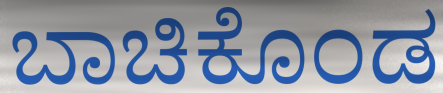
ಬಾಚಿಕೊಂಡ